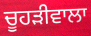
ਚੂਹੜੀਵਾਲਾ